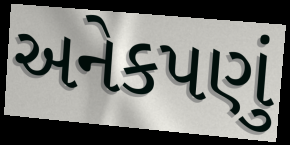
અનેકપણું